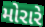
મોરારે